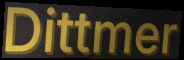
Dittmer